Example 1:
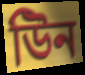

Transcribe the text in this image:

উিন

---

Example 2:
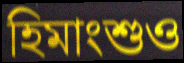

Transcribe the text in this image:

হিমাংশুও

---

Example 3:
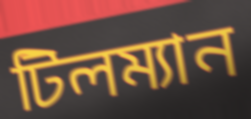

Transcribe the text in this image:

টিলম্যান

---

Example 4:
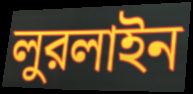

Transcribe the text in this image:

লুরলাইন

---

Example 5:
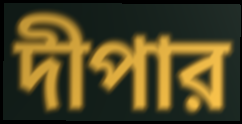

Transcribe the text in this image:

দীপার